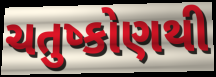
ચતુષ્કોણથી